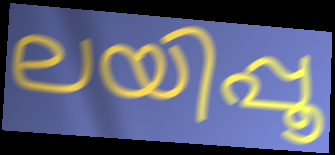
ലയിപ്പൂ